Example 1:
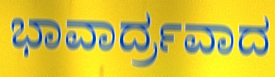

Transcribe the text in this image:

ಭಾವಾರ್ದ್ರವಾದ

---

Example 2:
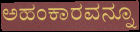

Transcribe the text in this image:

ಅಹಂಕಾರವನ್ನೂ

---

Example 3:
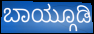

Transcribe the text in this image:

ಬಾಯ್ಗೂಡಿ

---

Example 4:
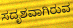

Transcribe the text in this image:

ಸದೃಶವಾಗಿರುವ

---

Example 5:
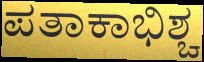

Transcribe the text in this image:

ಪತಾಕಾಭಿಶ್ಚ